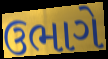
ઉભાગે